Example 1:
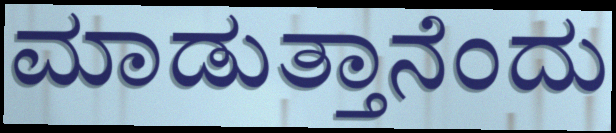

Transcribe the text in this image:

ಮಾಡುತ್ತಾನೆಂದು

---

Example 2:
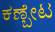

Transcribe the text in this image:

ಕಣ್ಬೇಟ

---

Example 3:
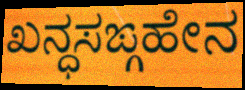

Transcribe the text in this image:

ಖನ್ಧಸಙ್ಗಹೇನ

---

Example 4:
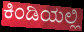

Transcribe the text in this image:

ಕಿಂಡಿಯಲ್ಲಿ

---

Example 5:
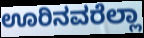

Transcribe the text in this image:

ಊರಿನವರೆಲ್ಲಾ